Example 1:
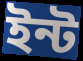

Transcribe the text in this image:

ইন্ট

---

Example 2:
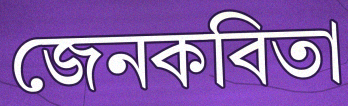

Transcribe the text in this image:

জেনকবিতা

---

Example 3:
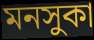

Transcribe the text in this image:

মনসুকা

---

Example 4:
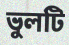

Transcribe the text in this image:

ভুলটি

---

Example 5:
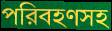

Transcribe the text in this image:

পরিবহণসহ